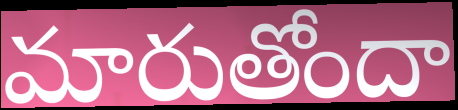
మారుతోందా